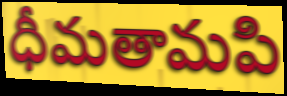
ధీమతామపి